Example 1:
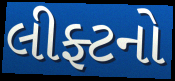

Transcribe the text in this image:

લીફ્ટનો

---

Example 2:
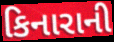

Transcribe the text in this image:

કિનારાની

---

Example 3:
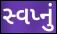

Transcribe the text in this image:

સ્વપ્નું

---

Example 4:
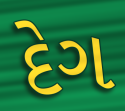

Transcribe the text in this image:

દેગ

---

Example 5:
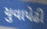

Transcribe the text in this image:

યુવાપેઢી